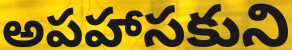
అపహాసకుని